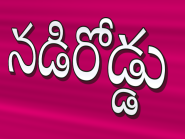
నడిరోడ్డు